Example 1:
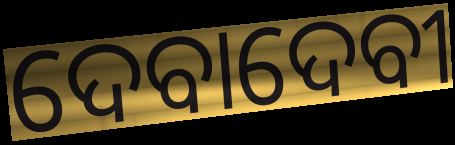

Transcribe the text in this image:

ଦେବାଦେବୀ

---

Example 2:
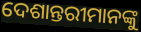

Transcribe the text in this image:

ଦେଶାନ୍ତରୀମାନଙ୍କୁ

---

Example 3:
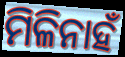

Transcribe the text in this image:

ମିଳିନାହଁ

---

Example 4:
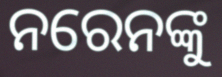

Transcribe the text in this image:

ନରେନଙ୍କୁ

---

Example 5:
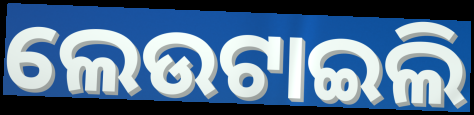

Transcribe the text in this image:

ଲେଉଟାଇଲି